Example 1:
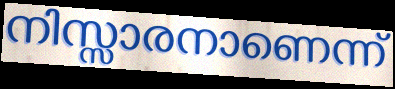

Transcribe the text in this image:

നിസ്സാരനാണെന്ന്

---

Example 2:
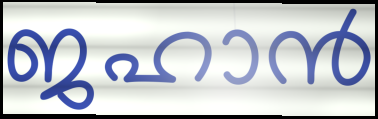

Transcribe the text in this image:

ജഹാൻ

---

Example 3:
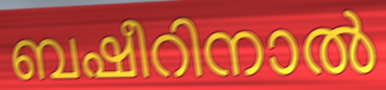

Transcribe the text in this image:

ബഷീറിനാൽ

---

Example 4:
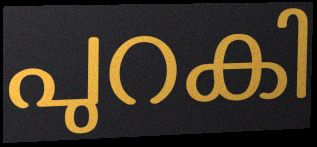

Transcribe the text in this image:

പുറകി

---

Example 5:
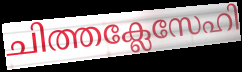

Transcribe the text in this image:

ചിത്തക്ലേസേഹി